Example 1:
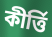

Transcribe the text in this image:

কীৰ্ত্তি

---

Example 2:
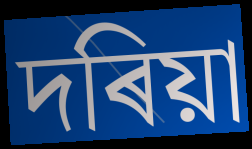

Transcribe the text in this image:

দৰিয়া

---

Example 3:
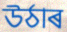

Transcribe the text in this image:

উঠাৰ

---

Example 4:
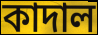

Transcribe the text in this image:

কাদাল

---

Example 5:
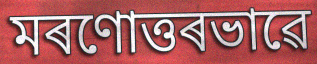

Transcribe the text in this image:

মৰণোত্তৰভাৱে